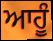
ਆਹੂੰ